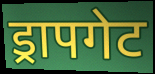
ड्रापगेट